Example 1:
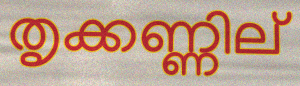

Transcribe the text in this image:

തൃക്കണ്ണില്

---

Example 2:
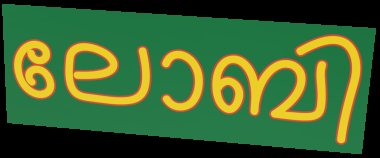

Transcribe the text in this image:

ലോബി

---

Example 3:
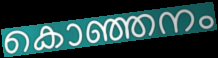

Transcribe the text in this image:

കൊഞ്ഞനം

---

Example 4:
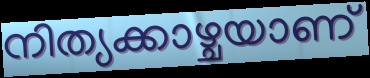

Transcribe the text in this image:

നിത്യക്കാഴ്ചയാണ്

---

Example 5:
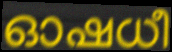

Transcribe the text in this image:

ഓഷധീ